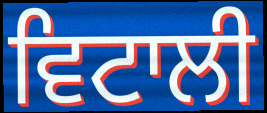
ਵਿਟਾਲੀ